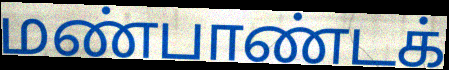
மண்பாண்டக்